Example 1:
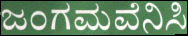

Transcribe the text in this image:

ಜಂಗಮವೆನಿಸಿ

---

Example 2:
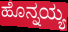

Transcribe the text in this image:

ಹೊನ್ನಯ್ಯ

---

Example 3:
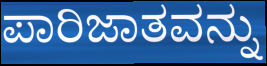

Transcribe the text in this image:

ಪಾರಿಜಾತವನ್ನು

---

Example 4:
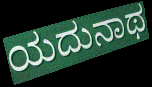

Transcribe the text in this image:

ಯದುನಾಥ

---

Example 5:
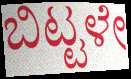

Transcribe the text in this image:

ಬಿಟ್ಟಳೇ